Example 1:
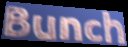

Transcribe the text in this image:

Bunch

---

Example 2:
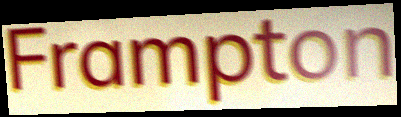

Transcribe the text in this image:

Frampton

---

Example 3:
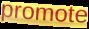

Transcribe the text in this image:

promote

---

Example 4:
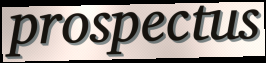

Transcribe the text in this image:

prospectus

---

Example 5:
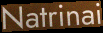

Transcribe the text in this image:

Natrinai